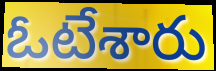
ఓటేశారు